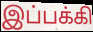
இப்பக்கி